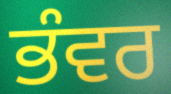
ਭੰਵਰ